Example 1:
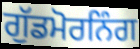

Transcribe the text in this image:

ਗੁੱਡਮੋਰਨਿੰਗ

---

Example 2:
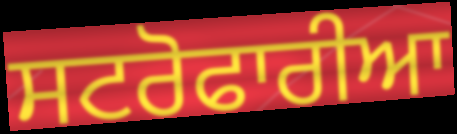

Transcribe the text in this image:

ਸਟਰੋਫਾਰੀਆ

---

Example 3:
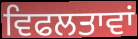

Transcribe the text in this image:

ਵਿਫਲਤਾਵਾਂ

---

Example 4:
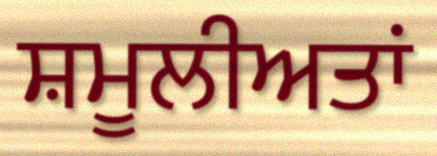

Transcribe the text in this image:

ਸ਼ਮੂਲੀਅਤਾਂ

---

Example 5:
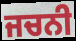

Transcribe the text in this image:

ਜਚਨੀ